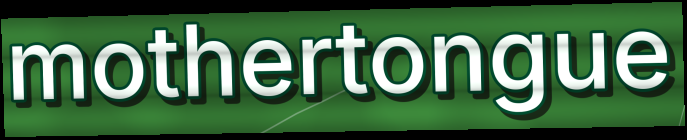
mothertongue